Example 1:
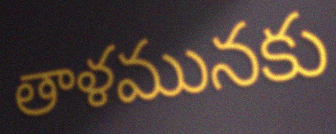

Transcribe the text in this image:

తాళమునకు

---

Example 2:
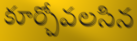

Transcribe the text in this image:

కూర్చోవలసిన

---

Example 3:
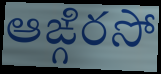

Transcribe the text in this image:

ఆఙ్గిరసో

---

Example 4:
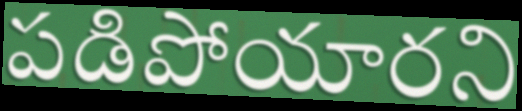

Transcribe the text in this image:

పడిపోయారని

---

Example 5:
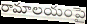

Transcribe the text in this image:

రామాలయంపై